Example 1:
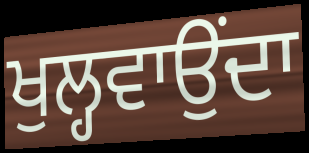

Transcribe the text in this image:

ਖੁਲ੍ਹਵਾਉਂਦਾ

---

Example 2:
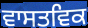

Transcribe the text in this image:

ਵਾਸਤਵਿਕ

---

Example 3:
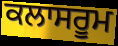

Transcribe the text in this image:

ਕਲਾਸਰੂਮ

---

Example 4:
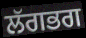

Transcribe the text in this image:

ਲੱਗਭਗ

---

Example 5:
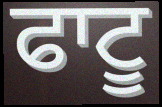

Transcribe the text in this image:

ਫਾਟੂ